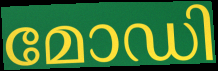
മോഡി